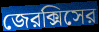
জেরক্সিসের